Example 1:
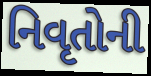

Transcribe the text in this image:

નિવૃતોની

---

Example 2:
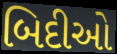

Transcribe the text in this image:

બિદીઓ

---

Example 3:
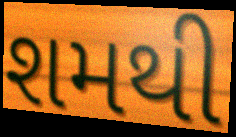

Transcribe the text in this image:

શમથી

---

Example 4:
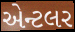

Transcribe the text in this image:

એન્ટલર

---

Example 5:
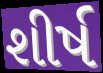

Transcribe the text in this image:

શીર્ષ